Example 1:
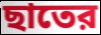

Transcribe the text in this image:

ছাতের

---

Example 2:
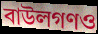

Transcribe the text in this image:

বাউলগণও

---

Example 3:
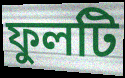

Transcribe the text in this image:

ফুলটি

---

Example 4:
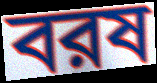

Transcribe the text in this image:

বরষ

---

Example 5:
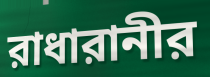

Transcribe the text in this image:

রাধারানীর